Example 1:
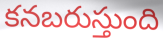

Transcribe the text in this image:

కనబరుస్తుంది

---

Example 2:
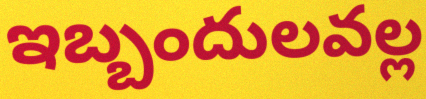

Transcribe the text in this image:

ఇబ్బందులవల్ల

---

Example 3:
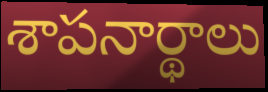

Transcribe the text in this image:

శాపనార్థాలు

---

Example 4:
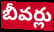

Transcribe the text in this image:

బీవర్లు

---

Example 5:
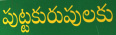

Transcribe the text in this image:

పుట్టకురుపులకు